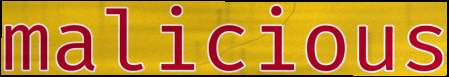
malicious